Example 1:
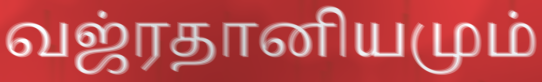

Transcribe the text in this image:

வஜ்ரதானியமும்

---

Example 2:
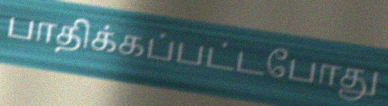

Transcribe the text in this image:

பாதிக்கப்பட்டபோது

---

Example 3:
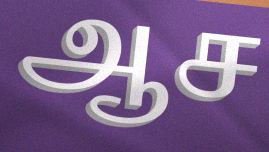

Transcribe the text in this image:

ஆச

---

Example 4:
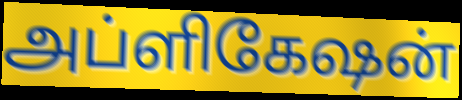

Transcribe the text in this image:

அப்ளிகேஷன்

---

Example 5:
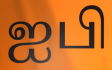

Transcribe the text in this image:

ஐபி